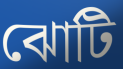
ঝোটি